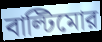
বাল্টিমোর